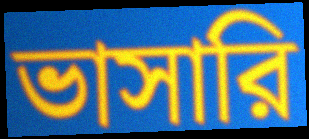
ভাসারি